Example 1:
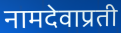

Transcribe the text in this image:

नामदेवाप्रती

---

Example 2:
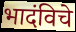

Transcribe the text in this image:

भादंविचे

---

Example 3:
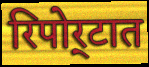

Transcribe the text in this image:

रिपोर्टात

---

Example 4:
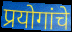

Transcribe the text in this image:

प्रयोगांचे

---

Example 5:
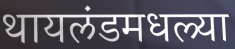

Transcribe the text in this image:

थायलंडमधल्या